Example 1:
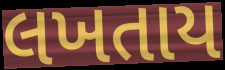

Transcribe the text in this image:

લખતાય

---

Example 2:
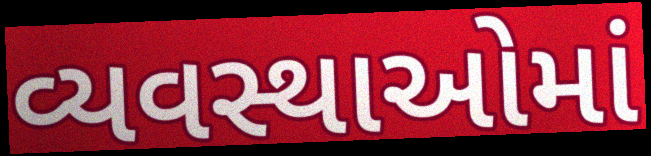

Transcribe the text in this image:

વ્યવસ્થાઓમાં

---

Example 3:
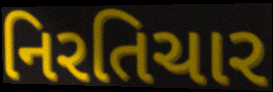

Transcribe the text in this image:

નિરતિચાર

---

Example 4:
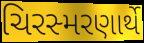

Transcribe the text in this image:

ચિરસ્મરણાર્થે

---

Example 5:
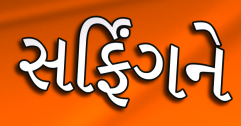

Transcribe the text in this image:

સર્ફિંગને